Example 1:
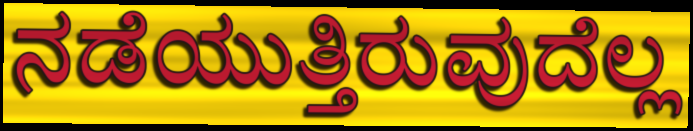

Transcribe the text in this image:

ನಡೆಯುತ್ತಿರುವುದೆಲ್ಲ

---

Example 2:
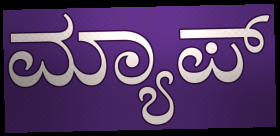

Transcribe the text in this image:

ಮ್ಯಾಪ್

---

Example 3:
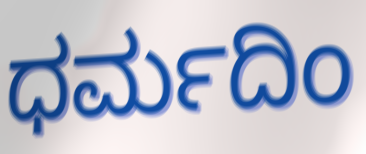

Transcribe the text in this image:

ಧರ್ಮದಿಂ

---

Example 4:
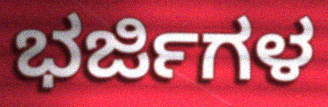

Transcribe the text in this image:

ಭರ್ಜಿಗಳ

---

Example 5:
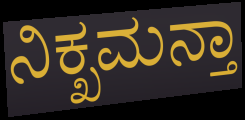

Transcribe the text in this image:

ನಿಕ್ಖಮನ್ತಾ